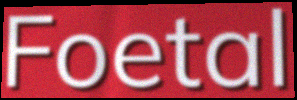
Foetal